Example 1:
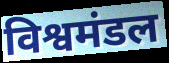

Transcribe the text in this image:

विश्वमंडल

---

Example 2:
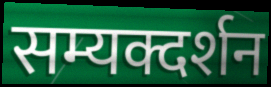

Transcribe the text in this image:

सम्यक्दर्शन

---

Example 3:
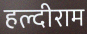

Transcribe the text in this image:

हल्दीराम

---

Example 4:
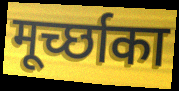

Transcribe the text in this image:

मूर्च्छाका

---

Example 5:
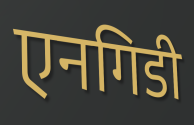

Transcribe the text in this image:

एनगिडी